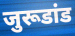
जुरूडांड